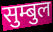
सुम्बुल